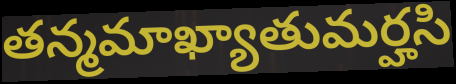
తన్మమాఖ్యాతుమర్హసి